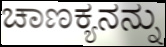
ಚಾಣಕ್ಯನನ್ನು